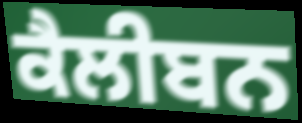
ਕੈਲੀਬਨ